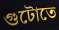
গুটোতে